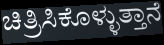
ಚಿತ್ರಿಸಿಕೊಳ್ಳುತ್ತಾನೆ